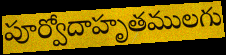
పూర్వోదాహృతములగు